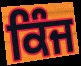
ਕਿੰਜ